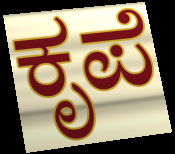
ಕೃಪೆ